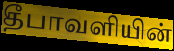
தீபாவளியின்